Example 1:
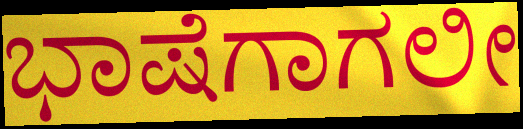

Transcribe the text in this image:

ಭಾಷೆಗಾಗಲೀ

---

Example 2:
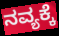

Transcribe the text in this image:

ನವ್ಯಕ್ಕೆ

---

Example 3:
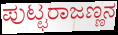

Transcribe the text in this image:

ಪುಟ್ಟರಾಜಣ್ಣನ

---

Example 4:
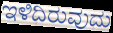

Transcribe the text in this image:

ಇಳಿದಿರುವುದು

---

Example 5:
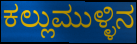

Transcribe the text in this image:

ಕಲ್ಲುಮುಳ್ಳಿನ